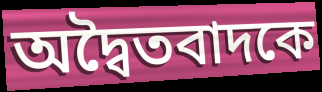
অদ্বৈতবাদকে